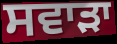
ਸਵਾੜਾ